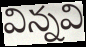
విన్నవి